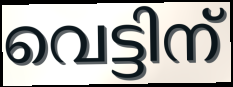
വെട്ടിന്